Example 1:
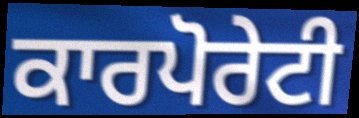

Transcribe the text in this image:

ਕਾਰਪੋਰੇਟੀ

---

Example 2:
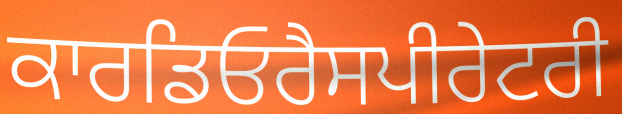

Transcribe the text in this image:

ਕਾਰਡਿਓਰੈਸਪੀਰੇਟਰੀ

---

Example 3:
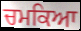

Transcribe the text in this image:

ਚਮਕਿਆ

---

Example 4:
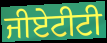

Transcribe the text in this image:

ਜੀਏਟੀਟੀ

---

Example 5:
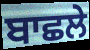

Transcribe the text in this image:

ਬਾਛਲੇ